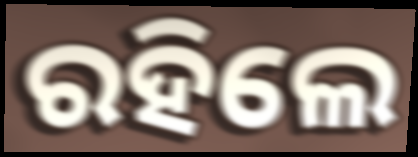
ରହିଲେ